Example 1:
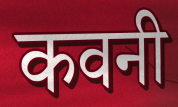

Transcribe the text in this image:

कवनी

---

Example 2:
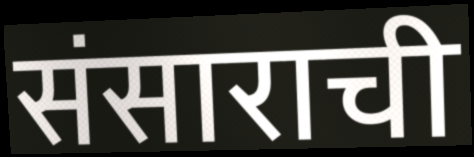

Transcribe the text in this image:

संसाराची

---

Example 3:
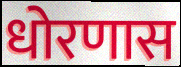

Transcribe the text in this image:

धोरणास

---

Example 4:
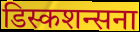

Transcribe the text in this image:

डिस्कशन्सना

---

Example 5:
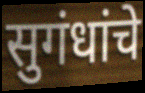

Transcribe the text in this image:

सुगंधांचे